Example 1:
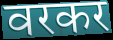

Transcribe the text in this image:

वरकर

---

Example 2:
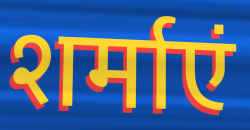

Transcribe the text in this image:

शर्माएं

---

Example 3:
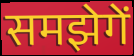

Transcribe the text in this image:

समझेगें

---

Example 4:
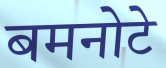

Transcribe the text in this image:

बमनोटे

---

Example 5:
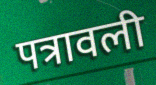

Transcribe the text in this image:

पत्रावली